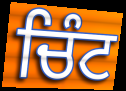
ਚਿੰਟ